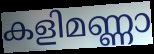
കളിമണ്ണാ